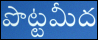
పొట్టమీద